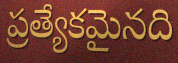
ప్రత్యేకమైనది